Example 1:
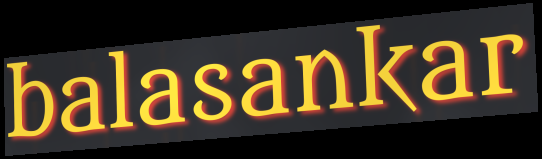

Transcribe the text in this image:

balasankar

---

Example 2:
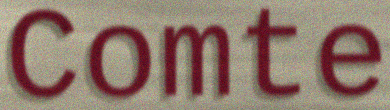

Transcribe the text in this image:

Comte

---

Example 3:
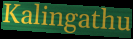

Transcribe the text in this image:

Kalingathu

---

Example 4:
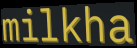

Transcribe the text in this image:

milkha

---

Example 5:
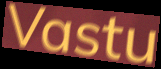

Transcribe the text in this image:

Vastu